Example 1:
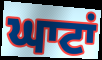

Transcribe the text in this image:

ਘਾਟਾਂ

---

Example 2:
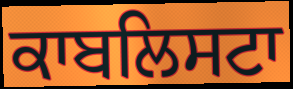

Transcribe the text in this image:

ਕਾਬਲਿਸਟਾ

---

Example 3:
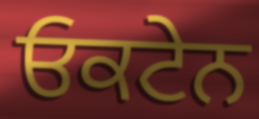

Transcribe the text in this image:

ਓਕਟੇਨ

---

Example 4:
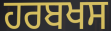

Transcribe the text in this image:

ਹਰਬਖਸ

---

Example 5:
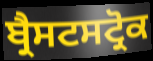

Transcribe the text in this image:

ਬ੍ਰੈਸਟਸਟ੍ਰੋਕ